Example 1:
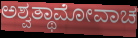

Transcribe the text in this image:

ಅಶ್ವತ್ಥಾಮೋವಾಚ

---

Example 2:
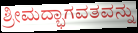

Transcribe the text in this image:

ಶ್ರೀಮದ್ಭಾಗವತವನ್ನು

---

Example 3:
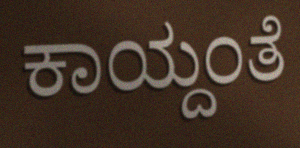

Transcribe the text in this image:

ಕಾಯ್ದಂತೆ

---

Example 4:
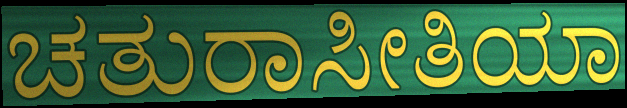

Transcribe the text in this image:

ಚತುರಾಸೀತಿಯಾ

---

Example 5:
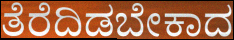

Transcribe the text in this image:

ತೆರೆದಿಡಬೇಕಾದ